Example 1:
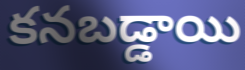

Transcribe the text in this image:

కనబడ్డాయి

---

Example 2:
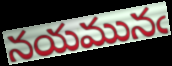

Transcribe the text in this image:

నయమునఁ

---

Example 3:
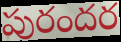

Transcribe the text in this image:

పురందర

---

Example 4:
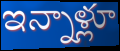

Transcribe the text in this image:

ఇన్నాళ్లూ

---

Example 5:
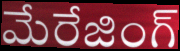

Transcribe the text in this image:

మేరేజింగ్